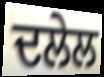
ਦਲੇਲ